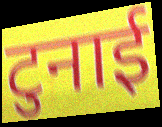
टुनाई